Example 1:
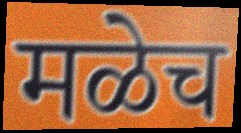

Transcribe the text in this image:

मळेच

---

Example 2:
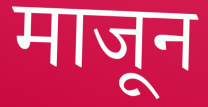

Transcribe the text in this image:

माजून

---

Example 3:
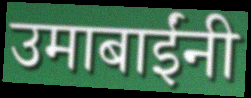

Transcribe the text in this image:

उमाबाईंनी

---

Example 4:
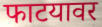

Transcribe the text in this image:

फाटयावर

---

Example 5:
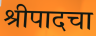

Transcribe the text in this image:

श्रीपादचा